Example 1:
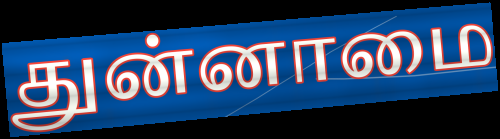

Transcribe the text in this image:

துன்னாமை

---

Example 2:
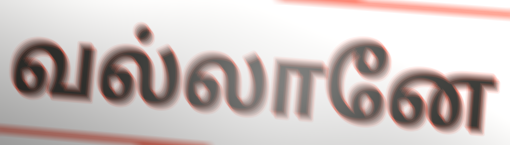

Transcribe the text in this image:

வல்லானே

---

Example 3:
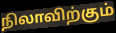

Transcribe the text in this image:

நிலாவிற்கும்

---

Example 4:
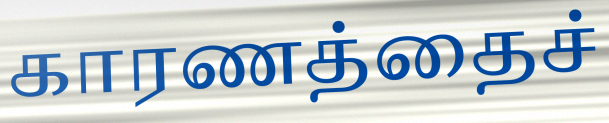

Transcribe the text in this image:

காரணத்தைச்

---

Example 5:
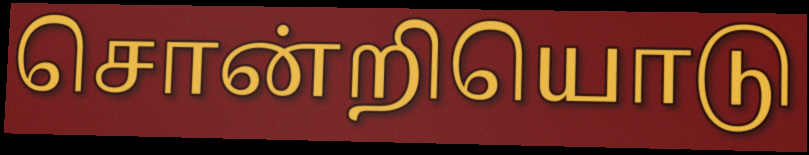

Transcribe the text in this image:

சொன்றியொடு